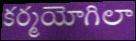
కర్మయోగిలా